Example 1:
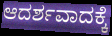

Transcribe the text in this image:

ಆದರ್ಶವಾದಕ್ಕೆ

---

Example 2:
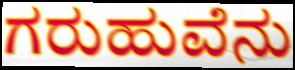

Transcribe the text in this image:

ಗರುಹುವೆನು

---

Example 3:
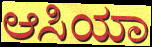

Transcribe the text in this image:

ಆಸಿಯಾ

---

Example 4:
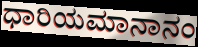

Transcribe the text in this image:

ಧಾರಿಯಮಾನಾನಂ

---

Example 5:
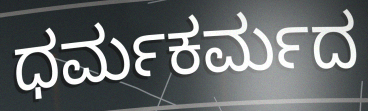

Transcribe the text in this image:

ಧರ್ಮಕರ್ಮದ